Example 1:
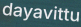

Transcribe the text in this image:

dayavittu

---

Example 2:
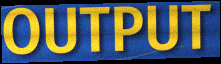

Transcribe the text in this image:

OUTPUT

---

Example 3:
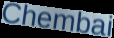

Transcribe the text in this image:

Chembai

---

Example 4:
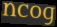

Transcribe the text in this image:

ncog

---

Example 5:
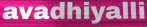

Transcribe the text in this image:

avadhiyalli